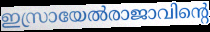
ഇസ്രായേൽരാജാവിന്റെ